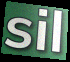
sil